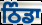
ਠਿੰਡਾ